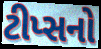
ટીપ્સનો